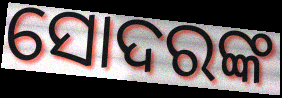
ସୋଦରଙ୍କ